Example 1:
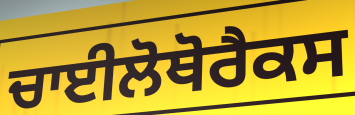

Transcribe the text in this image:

ਚਾਈਲੋਥੋਰੈਕਸ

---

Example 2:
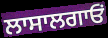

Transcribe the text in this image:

ਲਾਸਾਲਗਾਓਂ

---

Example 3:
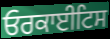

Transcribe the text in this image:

ਓਰਕਾਈਟਿਸ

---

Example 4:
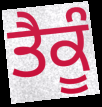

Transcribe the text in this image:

ਤੈਕੂੰ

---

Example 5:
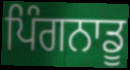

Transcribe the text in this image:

ਪਿੰਗਨਾਡੂ